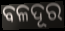
ବଳଦୂର